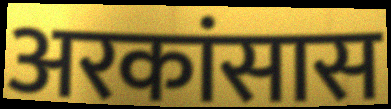
अरकांसास